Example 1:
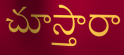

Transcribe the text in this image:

చూస్తారా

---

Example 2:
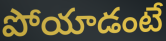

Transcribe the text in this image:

పోయాడంటే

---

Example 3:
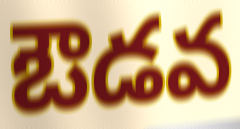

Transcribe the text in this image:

ఔడవ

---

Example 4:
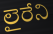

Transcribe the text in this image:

లైరేని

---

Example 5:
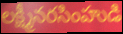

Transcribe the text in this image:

లక్ష్మీనరసింహుడి